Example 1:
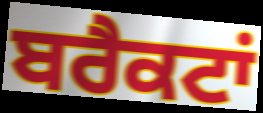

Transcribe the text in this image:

ਬਰੈਕਟਾਂ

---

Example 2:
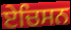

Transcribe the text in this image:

ਏਚਿਸਨ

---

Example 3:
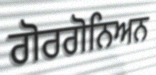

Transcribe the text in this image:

ਗੋਰਗੋਨਿਅਨ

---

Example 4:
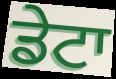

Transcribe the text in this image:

ਡੇਟਾ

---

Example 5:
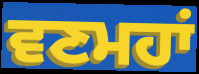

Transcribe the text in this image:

ਵਣਮਹਾਂ